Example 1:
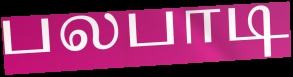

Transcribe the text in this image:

பலபாடி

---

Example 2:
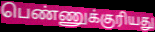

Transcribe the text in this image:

பெண்ணுக்குரியது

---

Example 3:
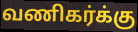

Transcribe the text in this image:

வணிகர்க்கு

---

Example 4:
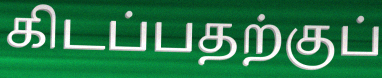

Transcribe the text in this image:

கிடப்பதற்குப்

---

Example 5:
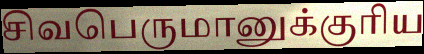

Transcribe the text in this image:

சிவபெருமானுக்குரிய